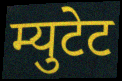
म्युटेट